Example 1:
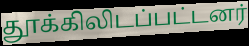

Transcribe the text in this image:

தூக்கிலிடப்பட்டனர்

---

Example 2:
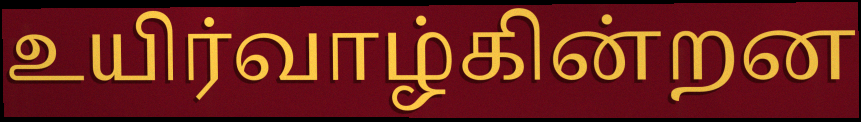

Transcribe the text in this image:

உயிர்வாழ்கின்றன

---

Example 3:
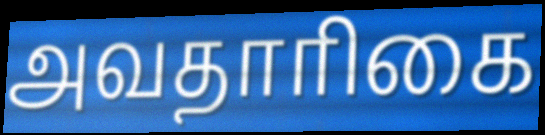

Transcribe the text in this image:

அவதாரிகை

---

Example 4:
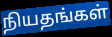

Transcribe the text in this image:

நியதங்கள்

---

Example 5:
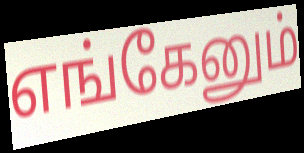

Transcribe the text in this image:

எங்கேனும்